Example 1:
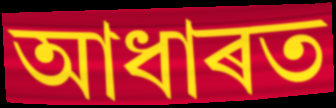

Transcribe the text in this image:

আধাৰত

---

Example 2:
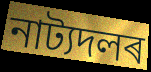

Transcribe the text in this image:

নাট্যদলৰ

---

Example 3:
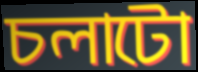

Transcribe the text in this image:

চলাটো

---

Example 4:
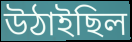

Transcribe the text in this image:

উঠাইছিল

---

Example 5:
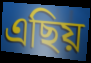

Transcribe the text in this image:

এছিয়